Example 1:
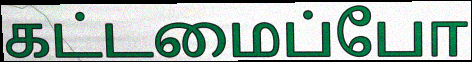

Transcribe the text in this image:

கட்டமைப்போ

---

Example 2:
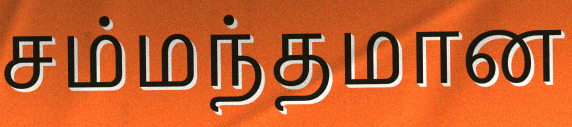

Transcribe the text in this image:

சம்மந்தமான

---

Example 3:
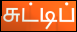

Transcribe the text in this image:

சுட்டிப்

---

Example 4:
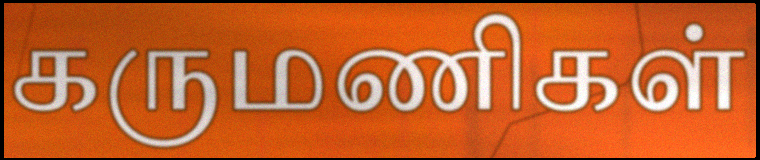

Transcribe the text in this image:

கருமணிகள்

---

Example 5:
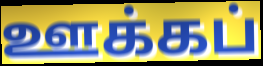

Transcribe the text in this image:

ஊக்கப்